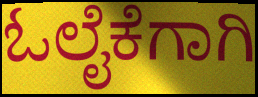
ಓಲೈಕೆಗಾಗಿ